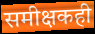
समीक्षकही